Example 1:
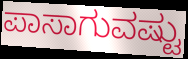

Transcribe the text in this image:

ಪಾಸಾಗುವಷ್ಟು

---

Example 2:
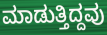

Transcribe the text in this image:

ಮಾಡುತ್ತಿದ್ದವು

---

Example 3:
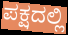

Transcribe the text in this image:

ಪಕ್ಷದಲ್ಲಿ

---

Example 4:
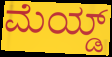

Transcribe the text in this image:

ಮೆಯ್ಡ್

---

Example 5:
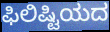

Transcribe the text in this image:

ಫಿಲಿಷ್ಟಿಯದ